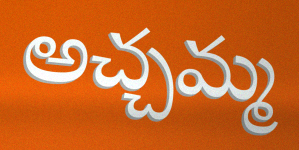
అచ్చమ్మ